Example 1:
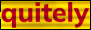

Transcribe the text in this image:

quitely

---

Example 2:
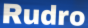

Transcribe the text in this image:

Rudro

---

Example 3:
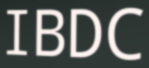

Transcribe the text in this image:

IBDC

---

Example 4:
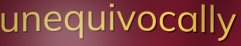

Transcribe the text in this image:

unequivocally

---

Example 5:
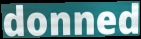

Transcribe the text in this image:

donned